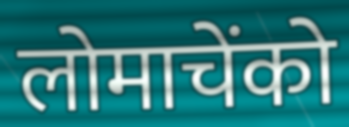
लोमाचेंको